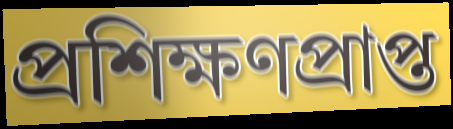
প্রশিক্ষণপ্রাপ্ত